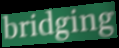
bridging